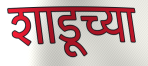
शाडूच्या